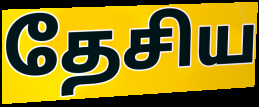
தேசிய